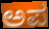
ಅಪ